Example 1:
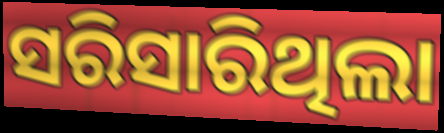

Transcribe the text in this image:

ସରିସାରିଥିଲା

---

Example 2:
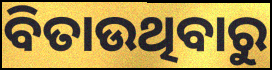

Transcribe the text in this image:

ବିତାଉଥିବାରୁ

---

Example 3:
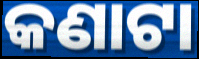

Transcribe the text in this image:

କଣାଟା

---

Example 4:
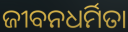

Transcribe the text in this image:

ଜୀବନଧର୍ମିତା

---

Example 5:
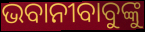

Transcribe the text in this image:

ଭବାନୀବାବୁଙ୍କୁ